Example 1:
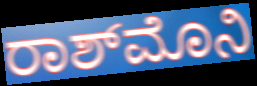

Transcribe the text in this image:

ರಾಶ್‌ಮೊನಿ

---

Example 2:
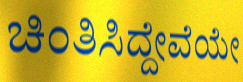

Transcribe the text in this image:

ಚಿಂತಿಸಿದ್ದೇವೆಯೇ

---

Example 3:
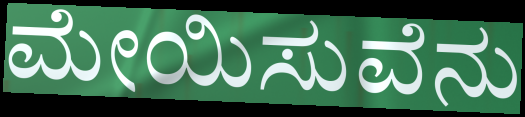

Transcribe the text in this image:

ಮೇಯಿಸುವೆನು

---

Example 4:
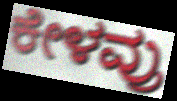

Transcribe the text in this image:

ಕೇಳವ್ರು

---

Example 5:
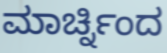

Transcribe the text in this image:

ಮಾರ್ಚ್ನಿಂದ